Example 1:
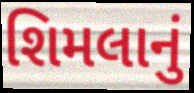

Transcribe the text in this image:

શિમલાનું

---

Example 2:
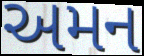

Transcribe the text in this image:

અમન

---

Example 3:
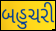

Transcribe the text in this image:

બહુચરી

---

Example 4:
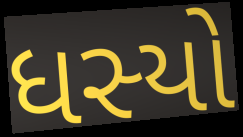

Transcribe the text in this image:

ધસ્યો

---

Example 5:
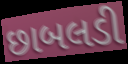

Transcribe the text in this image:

છાબલડી